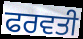
ਫਰਵਤੀ